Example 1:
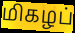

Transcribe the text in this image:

மிகழப்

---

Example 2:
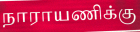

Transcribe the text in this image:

நாராயணிக்கு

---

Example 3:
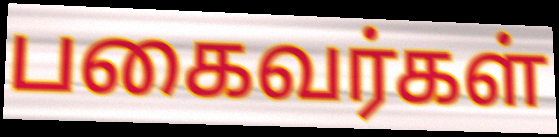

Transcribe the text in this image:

பகைவர்கள்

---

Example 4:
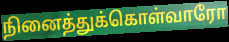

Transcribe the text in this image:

நினைத்துக்கொள்வாரோ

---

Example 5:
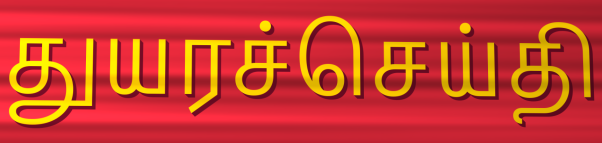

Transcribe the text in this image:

துயரச்செய்தி